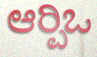
ಆರ್‍ಪಿಒ